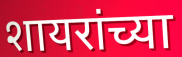
शायरांच्या